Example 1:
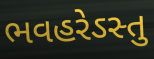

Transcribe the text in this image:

ભવહરેઽસ્તુ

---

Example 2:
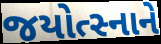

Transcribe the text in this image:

જયોત્સ્નાને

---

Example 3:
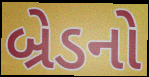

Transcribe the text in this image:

બ્રેડનો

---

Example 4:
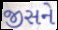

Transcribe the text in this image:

જીસને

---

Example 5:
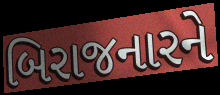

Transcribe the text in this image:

બિરાજનારને